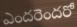
ఎందరెందరో